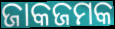
ଜାକଜମକ